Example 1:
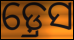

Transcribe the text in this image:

ଡ଼୍ରେସ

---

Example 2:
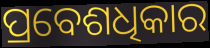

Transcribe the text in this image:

ପ୍ରବେଶଧିକାର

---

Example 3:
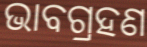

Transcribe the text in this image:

ଭାବଗ୍ରହଣ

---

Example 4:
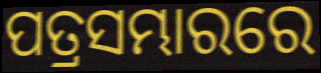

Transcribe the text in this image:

ପତ୍ରସମ୍ଭାରରେ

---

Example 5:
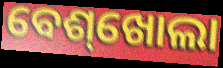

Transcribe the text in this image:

ବେଶ୍‌ଖୋଲା